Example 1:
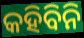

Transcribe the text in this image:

କହିବିନି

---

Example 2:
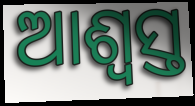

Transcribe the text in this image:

ଆଶ୍ବସ୍ତ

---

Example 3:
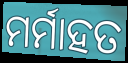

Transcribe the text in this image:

ମର୍ମାହତ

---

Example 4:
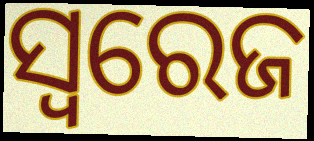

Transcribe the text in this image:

ସ୍ବରେଜ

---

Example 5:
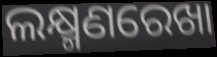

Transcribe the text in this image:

ଲକ୍ଷ୍ମଣରେଖା